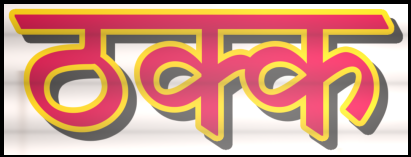
ठक्क